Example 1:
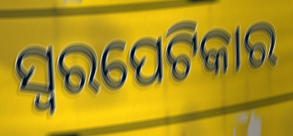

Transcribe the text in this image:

ସ୍ଵରପେଟିକାର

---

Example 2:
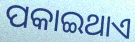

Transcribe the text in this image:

ପକାଇଥାଏ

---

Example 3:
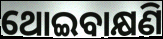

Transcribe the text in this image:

ଥୋଇବାକ୍ଷଣି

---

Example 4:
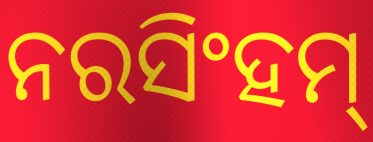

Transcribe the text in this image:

ନରସିଂହମ୍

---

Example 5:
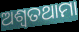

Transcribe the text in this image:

ଅଶ୍ୱତଥାମା